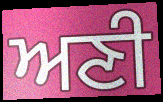
ਅਣੀ